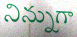
నిన్నుగా